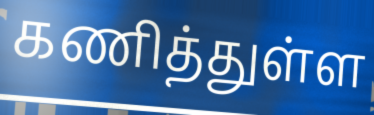
கணித்துள்ள